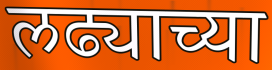
लढ्याच्या